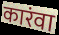
कारंवा